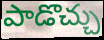
పాడొచ్చు